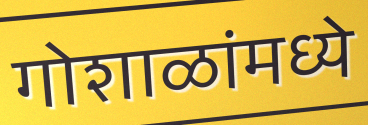
गोशाळांमध्ये